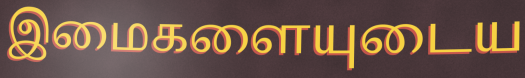
இமைகளையுடைய